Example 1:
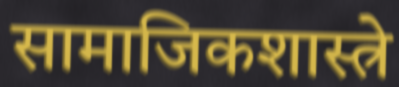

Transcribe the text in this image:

सामाजिकशास्त्रे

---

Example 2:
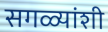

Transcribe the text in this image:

सगळ्यांशी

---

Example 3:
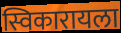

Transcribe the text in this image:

स्विकारायला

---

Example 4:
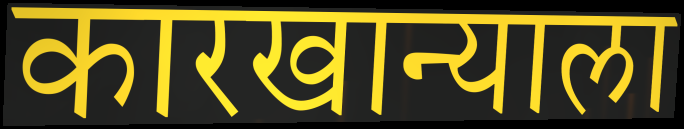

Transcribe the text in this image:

कारखान्याला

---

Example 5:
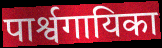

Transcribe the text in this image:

पार्श्वगायिका